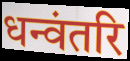
धन्वंतरि